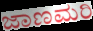
ಜಾಣಮರಿ